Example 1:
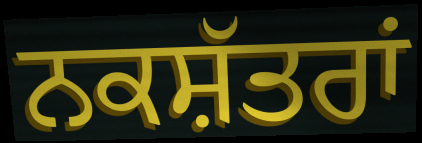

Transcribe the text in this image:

ਨਕਸ਼ੱਤਰਾਂ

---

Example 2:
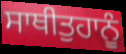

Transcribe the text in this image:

ਸਾਥੀਤੁਹਾਨੂੰ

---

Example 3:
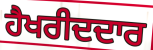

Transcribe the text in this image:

ਹੈਖਰੀਦਦਾਰ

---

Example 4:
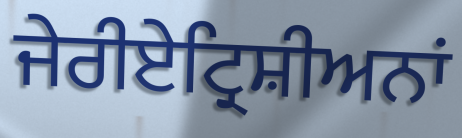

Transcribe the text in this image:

ਜੇਰੀਏਟ੍ਰਿਸ਼ੀਅਨਾਂ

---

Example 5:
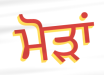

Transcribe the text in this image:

ਮੋੜਾਂ